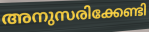
അനുസരിക്കേണ്ടി